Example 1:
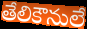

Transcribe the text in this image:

తేలికౌనులే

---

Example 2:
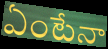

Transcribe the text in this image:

ఏంటేనా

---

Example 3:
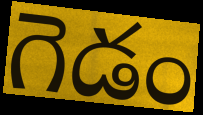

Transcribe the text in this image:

గెడం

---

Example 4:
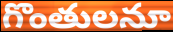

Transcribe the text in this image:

గొంతులనూ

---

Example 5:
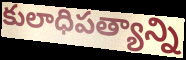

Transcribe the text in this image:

కులాధిపత్యాన్ని